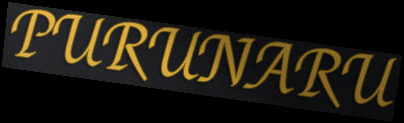
PURUNARU